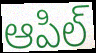
ఆపిల్